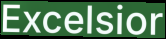
Excelsior